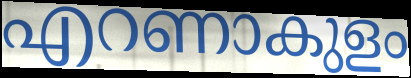
എറണാകുളം